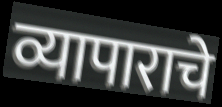
व्यापाराचे